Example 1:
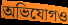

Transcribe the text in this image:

অভিযোগও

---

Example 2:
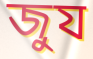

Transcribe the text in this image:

জুয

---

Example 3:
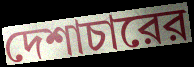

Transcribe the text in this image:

দেশাচারের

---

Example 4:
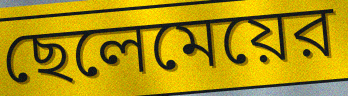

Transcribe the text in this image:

ছেলেমেয়ের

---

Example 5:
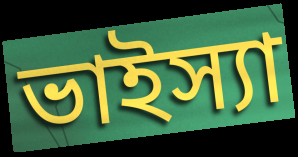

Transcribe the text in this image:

ভাইস্যা